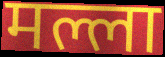
मल्‍ला